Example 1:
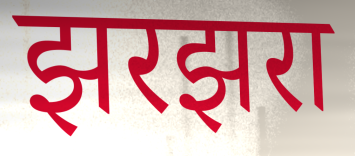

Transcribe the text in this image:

झरझरा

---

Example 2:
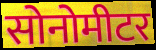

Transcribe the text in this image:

सोनोमीटर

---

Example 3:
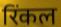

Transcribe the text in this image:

रिंकल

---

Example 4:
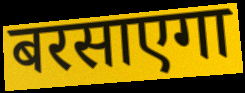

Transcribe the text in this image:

बरसाएगा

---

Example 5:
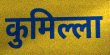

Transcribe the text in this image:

कुमिल्ला